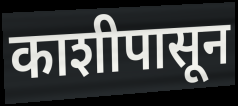
काशीपासून